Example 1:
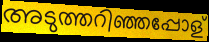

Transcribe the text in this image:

അടുത്തറിഞ്ഞപ്പോള്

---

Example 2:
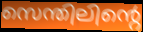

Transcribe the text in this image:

സെന്തിലിന്റെ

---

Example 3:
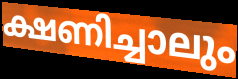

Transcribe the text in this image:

ക്ഷണിച്ചാലും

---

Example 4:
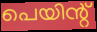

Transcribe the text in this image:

പെയിന്റ്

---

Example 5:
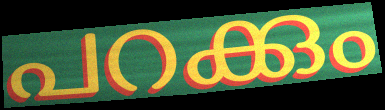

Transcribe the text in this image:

പറക്കും